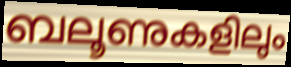
ബലൂണുകളിലും